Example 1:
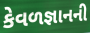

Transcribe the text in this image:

કેવળજ્ઞાનની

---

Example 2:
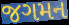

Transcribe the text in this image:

જગમન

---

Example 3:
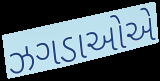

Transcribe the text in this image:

ઝગડાઓએ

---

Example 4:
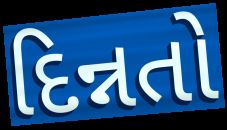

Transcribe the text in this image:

દિન્નતો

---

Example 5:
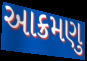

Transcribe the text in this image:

આક્રમણુ